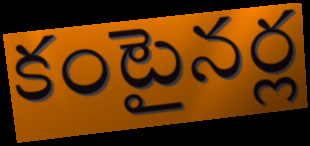
కంటైనర్ల